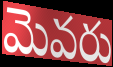
మెవరు